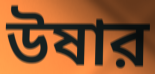
উষার